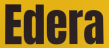
Edera